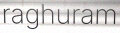
raghuram